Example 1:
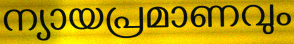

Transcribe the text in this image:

ന്യായപ്രമാണവും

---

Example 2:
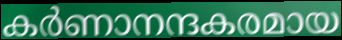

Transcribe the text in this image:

കർണാനന്ദകരമായ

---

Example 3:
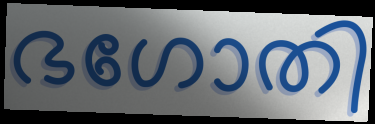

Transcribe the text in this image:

ഭഗോതി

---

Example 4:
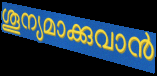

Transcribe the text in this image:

ശൂന്യമാക്കുവാൻ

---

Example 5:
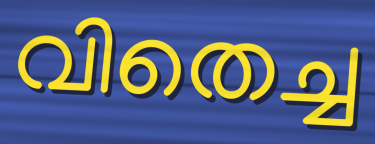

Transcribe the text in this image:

വിതെച്ച